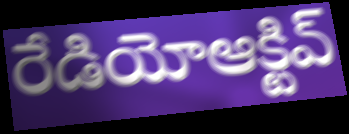
రేడియోఆక్టివ్